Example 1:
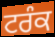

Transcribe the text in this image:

ਟਰੰਕ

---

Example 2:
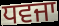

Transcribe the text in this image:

ਧਵਜਾ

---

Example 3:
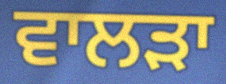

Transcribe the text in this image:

ਵਾਲੜਾ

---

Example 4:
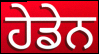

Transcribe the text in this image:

ਹੇਡੇਨ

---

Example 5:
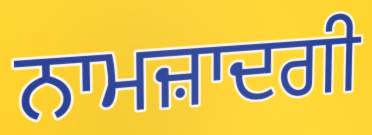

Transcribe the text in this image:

ਨਾਮਜ਼ਾਦਗੀ